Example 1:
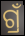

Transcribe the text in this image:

ଗ୍ରଁ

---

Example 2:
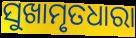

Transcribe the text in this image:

ସୁଖାମୃତଧାରା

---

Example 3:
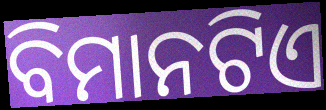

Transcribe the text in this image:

ବିମାନଟିଏ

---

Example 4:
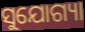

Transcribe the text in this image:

ସୁଯୋଗ୍ୟା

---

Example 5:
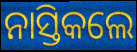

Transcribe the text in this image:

ନାସ୍ତିକଲେ